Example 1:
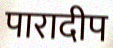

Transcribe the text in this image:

पारादीप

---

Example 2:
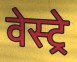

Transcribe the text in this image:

वेस्ट्रे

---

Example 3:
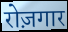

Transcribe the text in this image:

रोज़गार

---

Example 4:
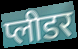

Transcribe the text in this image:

प्लीडर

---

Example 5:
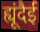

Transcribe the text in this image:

ह्यूंदैई